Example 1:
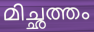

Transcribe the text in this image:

മിച്ഛത്തം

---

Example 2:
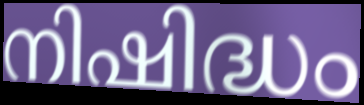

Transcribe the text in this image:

നിഷിദ്ധം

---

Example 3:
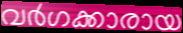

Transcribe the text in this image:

വർഗക്കാരായ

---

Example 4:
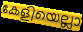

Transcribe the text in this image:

കേളിയെല്ലാ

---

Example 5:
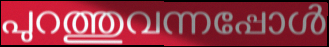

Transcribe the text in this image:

പുറത്തുവന്നപ്പോൾ